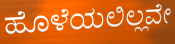
ಹೊಳೆಯಲಿಲ್ಲವೇ